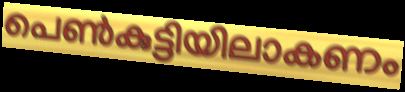
പെൺകുട്ടിയിലാകണം